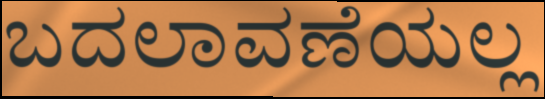
ಬದಲಾವಣೆಯಲ್ಲ